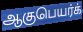
ஆகுபெயர்க்